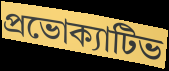
প্রভোক্যাটিভ